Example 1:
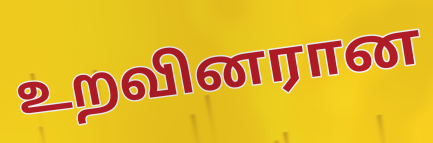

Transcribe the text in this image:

உறவினரான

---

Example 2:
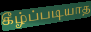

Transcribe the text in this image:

கீழ்ப்படியாத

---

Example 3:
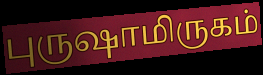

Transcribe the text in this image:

புருஷாமிருகம்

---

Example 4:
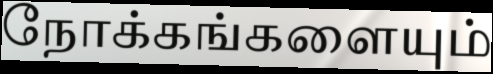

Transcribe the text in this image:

நோக்கங்களையும்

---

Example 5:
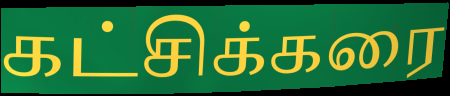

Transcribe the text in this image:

கட்சிக்கரை